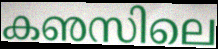
കഌസിലെ